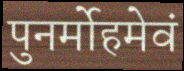
पुनर्मोहमेवं